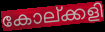
കോല്ക്കളി